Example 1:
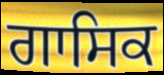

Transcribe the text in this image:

ਗਾਸਿਕ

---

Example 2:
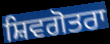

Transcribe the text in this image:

ਸ਼ਿਵਗੋਤਰਾ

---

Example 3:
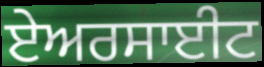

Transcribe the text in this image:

ਏਅਰਸਾਈਟ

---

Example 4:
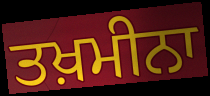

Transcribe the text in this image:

ਤਖ਼ਮੀਨਾ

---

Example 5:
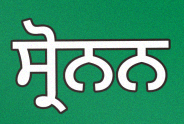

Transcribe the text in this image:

ਸ੍ਰੋਨਨ